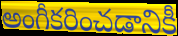
అంగీకరించడానికీ